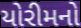
યોરીમનો